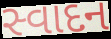
સ્વાદન